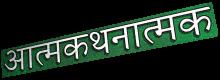
आत्मकथनात्मक